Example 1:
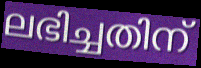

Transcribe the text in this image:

ലഭിച്ചതിന്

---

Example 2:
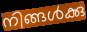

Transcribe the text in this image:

നിങ്ങൾക്കു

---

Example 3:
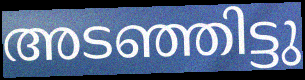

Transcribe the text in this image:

അടഞ്ഞിട്ടു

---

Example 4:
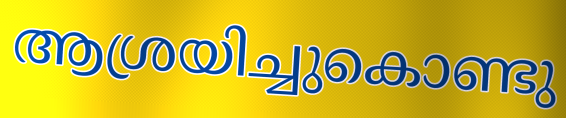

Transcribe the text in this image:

ആശ്രയിച്ചുകൊണ്ടു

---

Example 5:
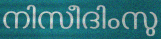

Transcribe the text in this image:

നിസീദിംസു